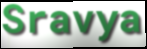
Sravya